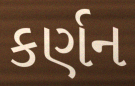
કર્ણન